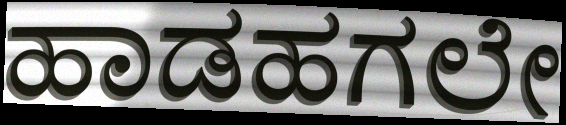
ಹಾಡಹಗಲೇ